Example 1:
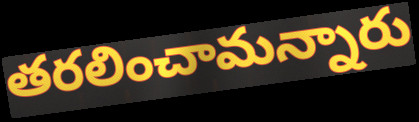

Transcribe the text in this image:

తరలించామన్నారు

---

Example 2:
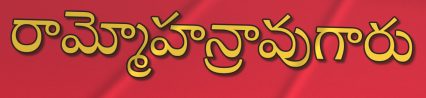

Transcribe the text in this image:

రామ్మోహన్రావుగారు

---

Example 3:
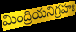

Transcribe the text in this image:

మింద్రియనిగ్రహః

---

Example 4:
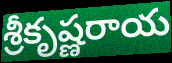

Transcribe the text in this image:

శ్రీకృష్ణరాయ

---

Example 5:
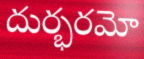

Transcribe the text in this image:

దుర్భరమో